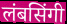
लंबसिंगी